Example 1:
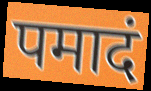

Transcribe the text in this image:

पमादं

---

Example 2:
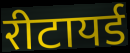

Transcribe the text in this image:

रीटायर्ड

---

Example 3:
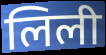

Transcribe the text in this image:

लिली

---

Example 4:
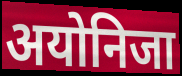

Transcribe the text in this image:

अयोनिजा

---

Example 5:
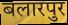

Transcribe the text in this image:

बलारपुर